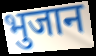
भुजान